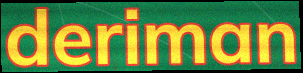
deriman